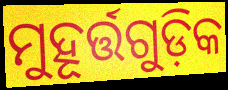
ମୁହୂର୍ତ୍ତଗୁଡ଼ିକ